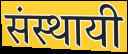
संस्थायी